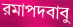
রমাপদবাবু